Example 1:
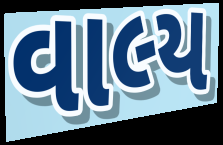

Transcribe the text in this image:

વાલ્ય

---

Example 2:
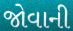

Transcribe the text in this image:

જોવાની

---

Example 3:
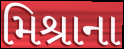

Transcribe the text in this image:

મિશ્રાના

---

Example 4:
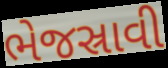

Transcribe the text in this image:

ભેજસ્રાવી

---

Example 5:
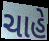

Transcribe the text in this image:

ચાહે